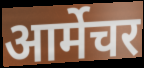
आर्मेचर